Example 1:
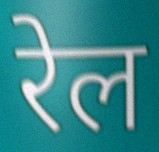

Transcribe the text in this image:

रेल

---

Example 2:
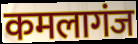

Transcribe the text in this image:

कमलागंज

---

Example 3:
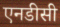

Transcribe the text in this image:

एनडीसी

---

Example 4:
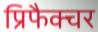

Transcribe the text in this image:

प्रिफैक्चर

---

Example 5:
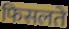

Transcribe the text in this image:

फिसलते